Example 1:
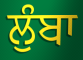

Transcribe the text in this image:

ਲੁੰਬਾ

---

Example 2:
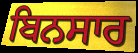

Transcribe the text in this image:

ਬਿਨਸਾਰ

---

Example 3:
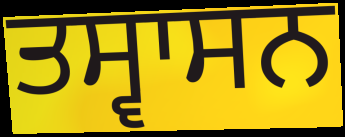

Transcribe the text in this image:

ਤਸ੍ਵਾਸਨ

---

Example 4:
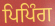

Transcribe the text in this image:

ਪਿਪਿੰਗ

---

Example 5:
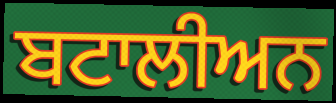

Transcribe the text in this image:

ਬਟਾਲੀਅਨ